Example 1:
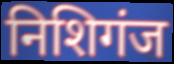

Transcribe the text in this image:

निशिगंज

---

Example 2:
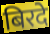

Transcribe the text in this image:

बिरदे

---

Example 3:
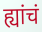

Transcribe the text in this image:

ह्यांचं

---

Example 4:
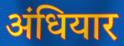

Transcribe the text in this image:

अंधियार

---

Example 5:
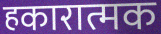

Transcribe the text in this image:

हकारात्मक